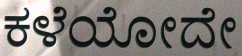
ಕಳೆಯೋದೇ